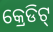
କ୍ରେଡିଟ୍